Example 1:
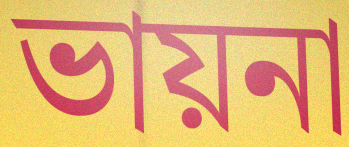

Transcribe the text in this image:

ভায়না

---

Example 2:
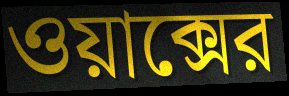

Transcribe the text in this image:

ওয়াক্সের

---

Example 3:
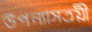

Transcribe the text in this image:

উপন্যাসত্রয়ী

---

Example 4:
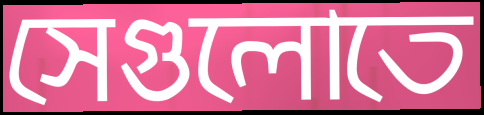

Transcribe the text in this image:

সেগুলোতে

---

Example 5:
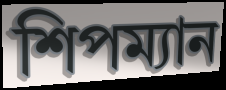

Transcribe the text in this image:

শিপম্যান